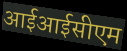
आईआईसीएम